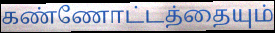
கண்ணோட்டத்தையும்